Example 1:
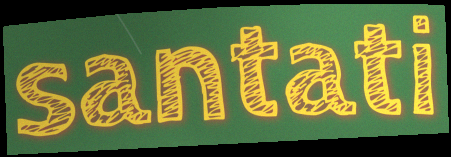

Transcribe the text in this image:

santati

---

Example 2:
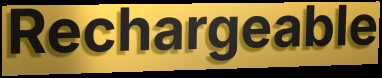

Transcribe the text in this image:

Rechargeable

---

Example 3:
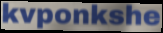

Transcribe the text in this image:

kvponkshe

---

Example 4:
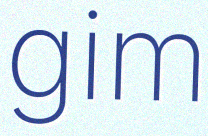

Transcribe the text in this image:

gim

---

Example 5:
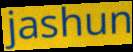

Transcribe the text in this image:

jashun